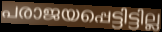
പരാജയപ്പെട്ടിട്ടില്ല